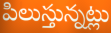
పిలుస్తున్నట్లు